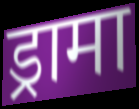
ड्रामा